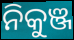
ନିକୁଞ୍ଜ